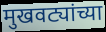
मुखवट्यांच्या